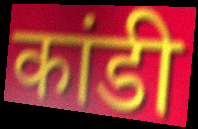
कांडी